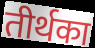
तीर्थका